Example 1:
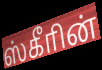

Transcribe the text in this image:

ஸ்கீரின்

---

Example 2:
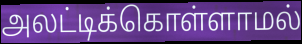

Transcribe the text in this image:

அலட்டிக்கொள்ளாமல்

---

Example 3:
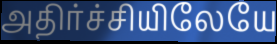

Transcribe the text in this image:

அதிர்ச்சியிலேயே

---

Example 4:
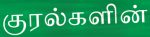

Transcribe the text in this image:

குரல்களின்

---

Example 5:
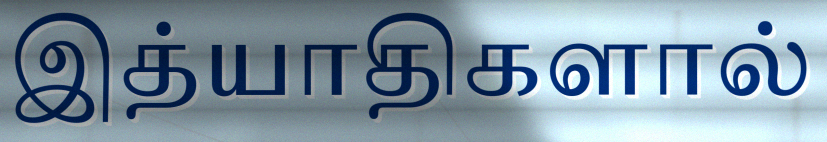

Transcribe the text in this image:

இத்யாதிகளால்